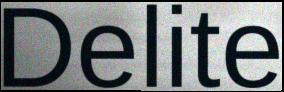
Delite